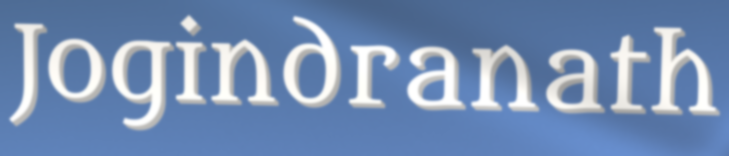
Jogindranath